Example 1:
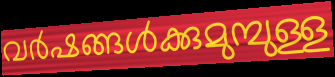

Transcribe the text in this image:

വർഷങ്ങൾക്കുമുമ്പുള്ള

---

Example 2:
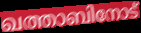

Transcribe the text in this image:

ഖത്താബിനോട്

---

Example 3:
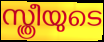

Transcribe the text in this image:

സ്ത്രീയുടെ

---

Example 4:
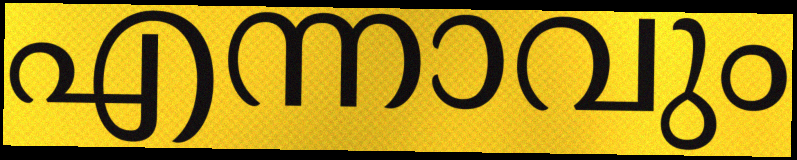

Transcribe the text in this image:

എന്നാവും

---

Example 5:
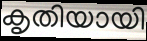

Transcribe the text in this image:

കൃതിയായി